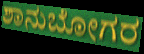
ಶಾನುಬೋಗರ